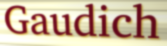
Gaudich